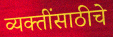
व्यक्तींसाठीचे